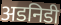
अडनिडी